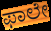
ಫಾಲೇ